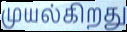
முயல்கிறது